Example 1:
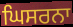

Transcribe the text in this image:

ਘਿਸਰਨਾ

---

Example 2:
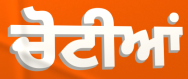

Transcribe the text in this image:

ਚੋਟੀਆਂ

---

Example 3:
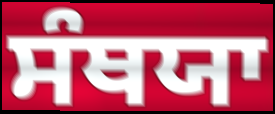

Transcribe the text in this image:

ਸੰਥਯਾ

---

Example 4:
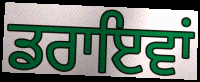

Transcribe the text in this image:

ਡਰਾਇਵਾਂ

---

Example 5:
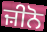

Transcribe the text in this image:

ਜ਼ੀਨੋ